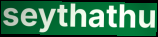
seythathu